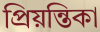
প্রিয়ন্তিকা